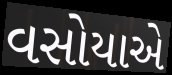
વસોયાએ